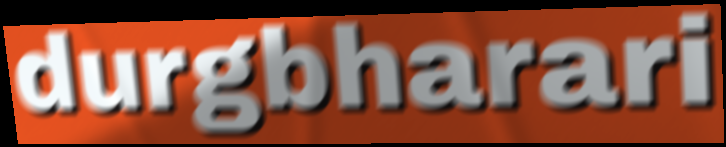
durgbharari